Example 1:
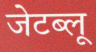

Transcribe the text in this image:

जेटब्लू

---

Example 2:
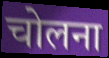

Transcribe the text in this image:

चोलना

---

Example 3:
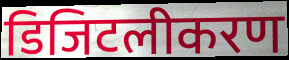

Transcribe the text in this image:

डिजिटलीकरण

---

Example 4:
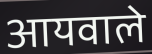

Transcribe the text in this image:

आयवाले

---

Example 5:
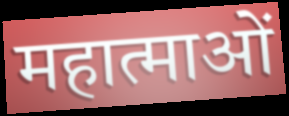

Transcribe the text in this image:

महात्‍माओं